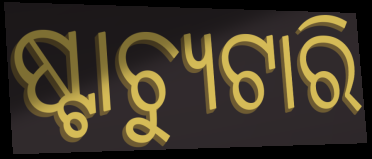
ଷ୍ଟାଚ୍ୟୁଟାରି